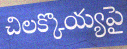
చిలక్కొయ్యపై